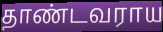
தாண்டவராய